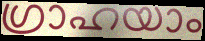
ഗ്രാഹയാം